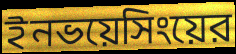
ইনভয়েসিংয়ের